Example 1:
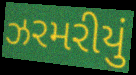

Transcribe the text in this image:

ઝરમરીયું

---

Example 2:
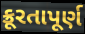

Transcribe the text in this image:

ક્રૂરતાપૂર્ણ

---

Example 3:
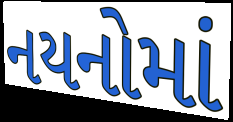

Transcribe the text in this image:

નયનોમાં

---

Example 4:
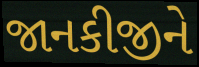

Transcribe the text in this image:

જાનકીજીને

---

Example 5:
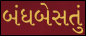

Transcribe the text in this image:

બંધબેસતું